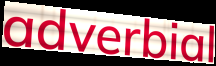
adverbial